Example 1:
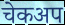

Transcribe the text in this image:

चेकअप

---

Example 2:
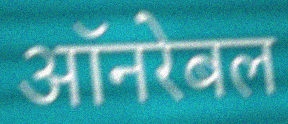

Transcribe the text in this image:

ऑनरेबल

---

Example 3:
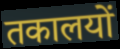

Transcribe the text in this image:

तकालयों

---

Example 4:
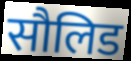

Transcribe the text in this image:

सौलिड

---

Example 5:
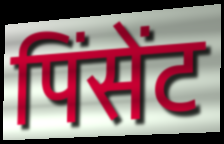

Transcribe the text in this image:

पिंसेंट